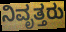
ನಿವೃತ್ತರು